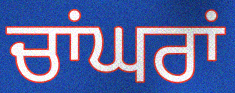
ਚਾਂਘਰਾਂ